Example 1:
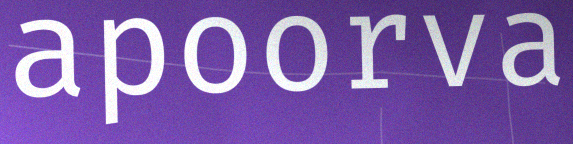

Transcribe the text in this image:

apoorva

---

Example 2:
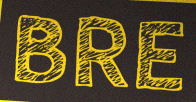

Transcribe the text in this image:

BRE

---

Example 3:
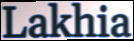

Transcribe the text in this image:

Lakhia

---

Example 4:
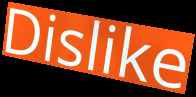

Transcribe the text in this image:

Dislike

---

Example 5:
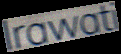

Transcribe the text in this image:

Irawati